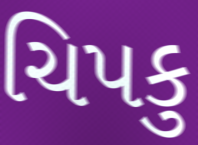
ચિપકુ